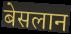
बेसलान